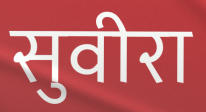
सुवीरा